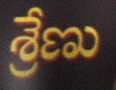
శ్రేణు